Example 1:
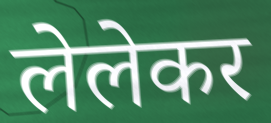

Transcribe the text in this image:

लेलेकर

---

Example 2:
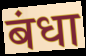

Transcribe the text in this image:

बंधा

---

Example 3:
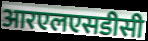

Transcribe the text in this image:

आरएलएसडीसी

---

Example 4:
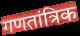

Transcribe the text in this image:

गणतांत्रिक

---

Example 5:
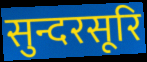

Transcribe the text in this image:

सुन्दरसूरि